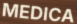
MEDICA